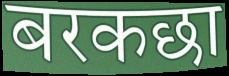
बरकछा